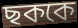
ছককে